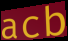
acb